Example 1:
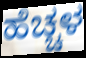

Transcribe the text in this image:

ಹೆಚ್ಚಳ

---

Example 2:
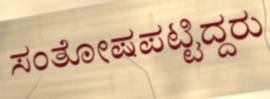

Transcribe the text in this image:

ಸಂತೋಷಪಟ್ಟಿದ್ದರು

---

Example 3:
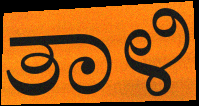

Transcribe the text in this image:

ತಾಳಿ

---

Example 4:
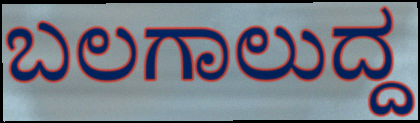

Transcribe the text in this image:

ಬಲಗಾಲುದ್ದ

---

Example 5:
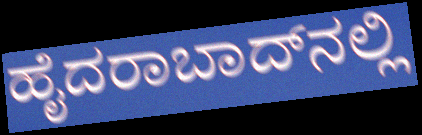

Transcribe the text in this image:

ಹೈದರಾಬಾದ್‌ನಲ್ಲಿ